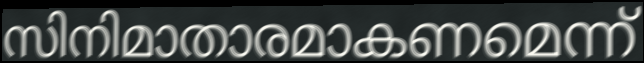
സിനിമാതാരമാകണമെന്ന്